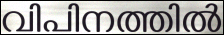
വിപിനത്തിൽ